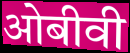
ओबीवी